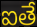
ఐతే